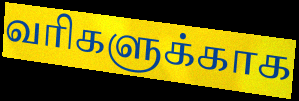
வரிகளுக்காக